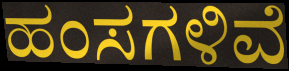
ಹಂಸಗಳಿವೆ